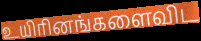
உயிரினங்களைவிட